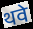
थवे